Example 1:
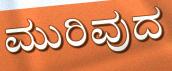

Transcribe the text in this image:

ಮುರಿವುದ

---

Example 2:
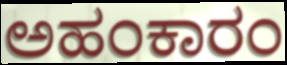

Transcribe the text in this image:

ಅಹಂಕಾರಂ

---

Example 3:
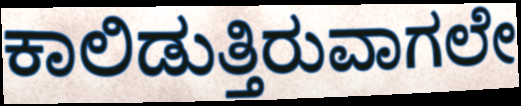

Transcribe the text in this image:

ಕಾಲಿಡುತ್ತಿರುವಾಗಲೇ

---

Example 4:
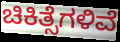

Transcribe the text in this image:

ಚಿಕಿತ್ಸೆಗಳಿವೆ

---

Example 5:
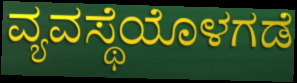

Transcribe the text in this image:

ವ್ಯವಸ್ಥೆಯೊಳಗಡೆ